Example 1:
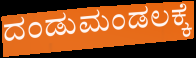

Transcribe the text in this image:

ದಂಡುಮಂಡಲಕ್ಕೆ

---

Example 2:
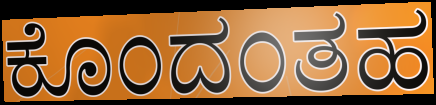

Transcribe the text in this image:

ಕೊಂದಂತಹ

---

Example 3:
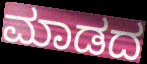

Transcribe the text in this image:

ಮಾಡದ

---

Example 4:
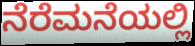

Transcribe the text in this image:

ನೆರೆಮನೆಯಲ್ಲಿ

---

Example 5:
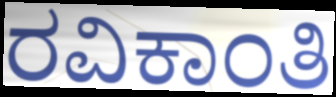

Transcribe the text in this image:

ರವಿಕಾಂತಿ